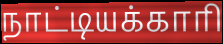
நாட்டியக்காரி